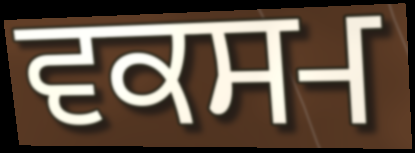
ਵਕਸ੍ਮ